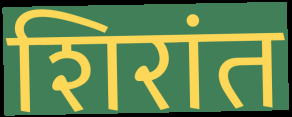
शिरांत